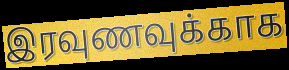
இரவுணவுக்காக